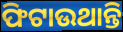
ଫିଟାଉଥାନ୍ତି